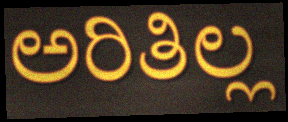
ಅರಿತಿಲ್ಲ